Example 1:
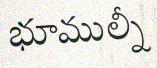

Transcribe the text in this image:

భూముల్నీ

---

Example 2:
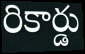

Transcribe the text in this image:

రికార్డు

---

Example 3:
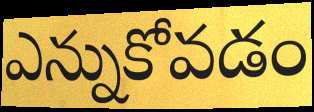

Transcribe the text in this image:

ఎన్నుకోవడం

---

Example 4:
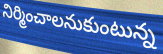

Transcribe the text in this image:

నిర్మించాలనుకుంటున్న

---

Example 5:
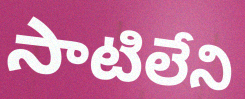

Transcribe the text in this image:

సాటిలేని